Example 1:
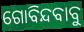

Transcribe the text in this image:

ଗୋବିନ୍ଦବାବୁ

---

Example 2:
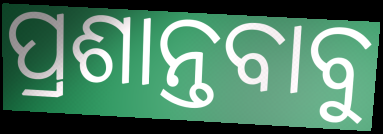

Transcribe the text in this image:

ପ୍ରଶାନ୍ତବାବୁ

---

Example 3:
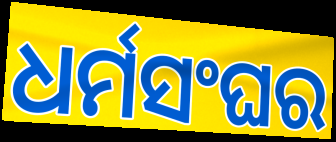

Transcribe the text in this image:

ଧର୍ମସଂଘର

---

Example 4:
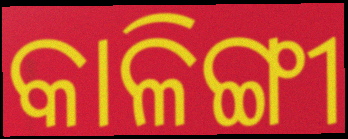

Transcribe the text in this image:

କାଳିଙ୍ଗୀ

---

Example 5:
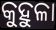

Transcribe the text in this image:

କୁହୁଳା